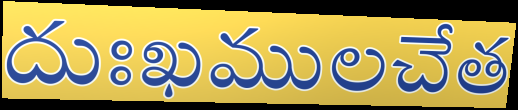
దుఃఖములచేత